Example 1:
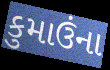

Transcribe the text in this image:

કુમાઉંના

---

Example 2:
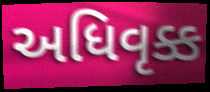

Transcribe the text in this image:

અધિવૃક્ક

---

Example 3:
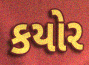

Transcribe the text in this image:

કયોર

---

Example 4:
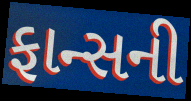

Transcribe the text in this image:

ફાન્સની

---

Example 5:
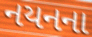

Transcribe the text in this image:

નયનના